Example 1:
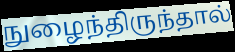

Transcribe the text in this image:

நுழைந்திருந்தால்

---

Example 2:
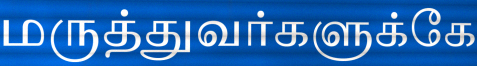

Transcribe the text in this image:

மருத்துவர்களுக்கே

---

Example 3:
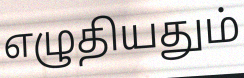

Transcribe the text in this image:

எழுதியதும்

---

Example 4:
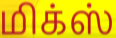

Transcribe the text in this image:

மிக்ஸ்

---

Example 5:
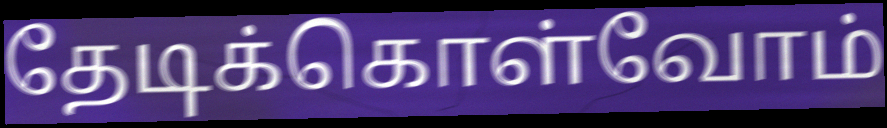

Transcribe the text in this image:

தேடிக்கொள்வோம்